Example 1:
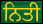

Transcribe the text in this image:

ਨਿਤੀ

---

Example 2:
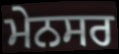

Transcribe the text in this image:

ਮੇਨਸਰ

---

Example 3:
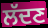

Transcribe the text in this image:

ਲੱਦਣ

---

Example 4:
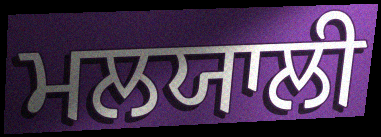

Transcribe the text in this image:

ਮਲਯਾਲੀ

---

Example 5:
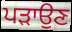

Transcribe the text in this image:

ਪੜਾਉਣ